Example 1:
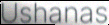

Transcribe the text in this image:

Ushanas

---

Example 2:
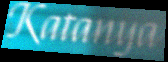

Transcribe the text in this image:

Katanya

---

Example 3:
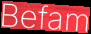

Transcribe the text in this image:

Befam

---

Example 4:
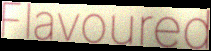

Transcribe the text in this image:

Flavoured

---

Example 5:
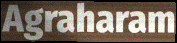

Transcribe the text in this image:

Agraharam